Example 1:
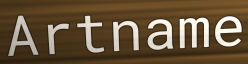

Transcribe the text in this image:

Artname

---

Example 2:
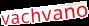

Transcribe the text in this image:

vachvano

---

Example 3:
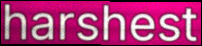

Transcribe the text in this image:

harshest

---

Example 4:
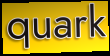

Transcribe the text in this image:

quark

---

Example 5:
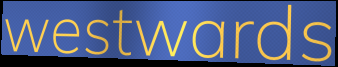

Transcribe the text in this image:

westwards